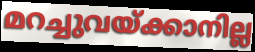
മറച്ചുവയ്ക്കാനില്ല